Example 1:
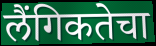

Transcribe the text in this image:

लैंगिकतेचा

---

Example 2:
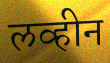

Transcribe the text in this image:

लव्हीन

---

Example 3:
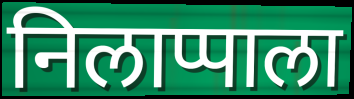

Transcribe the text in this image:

निलाप्पाला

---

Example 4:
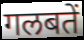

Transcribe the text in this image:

गलबतें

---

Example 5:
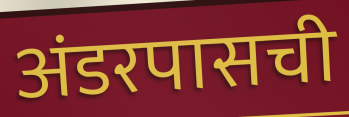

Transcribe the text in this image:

अंडरपासची